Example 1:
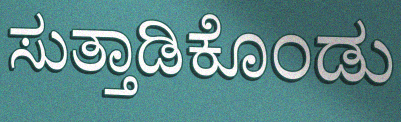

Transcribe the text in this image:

ಸುತ್ತಾಡಿಕೊಂಡು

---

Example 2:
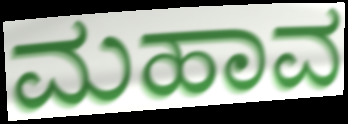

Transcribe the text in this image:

ಮಹಾವ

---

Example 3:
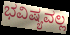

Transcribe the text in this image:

ಭವಿಷ್ಯವಲ್ಲ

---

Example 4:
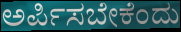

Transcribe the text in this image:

ಅರ್ಪಿಸಬೇಕೆಂದು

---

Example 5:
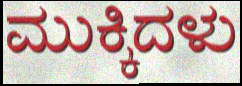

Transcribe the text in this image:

ಮುಕ್ಕಿದಳು